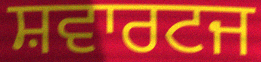
ਸ਼ਵਾਰਟਜ